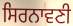
ਸਿਰਨਾਵਣੀ